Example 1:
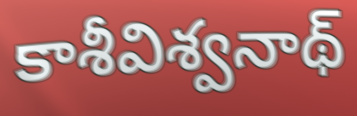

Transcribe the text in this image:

కాశీవిశ్వనాథ్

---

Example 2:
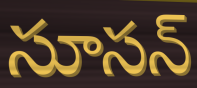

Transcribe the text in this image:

సూసన్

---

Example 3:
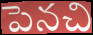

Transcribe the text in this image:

పెనచి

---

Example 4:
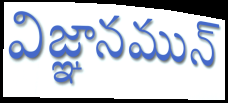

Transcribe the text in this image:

విజ్ఞానమున్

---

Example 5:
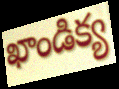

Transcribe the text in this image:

ఖాండిక్య